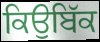
ਕਿਉਬਿੱਕ